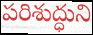
పరిశుద్ధుని